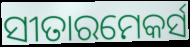
ସୀତାରମେକର୍ସ